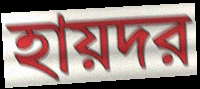
হায়দর